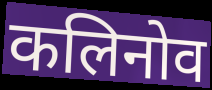
कलिनोव